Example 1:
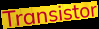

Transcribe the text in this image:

Transistor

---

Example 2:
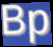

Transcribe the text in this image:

Bp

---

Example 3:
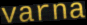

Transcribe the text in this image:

varna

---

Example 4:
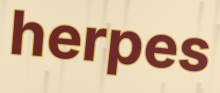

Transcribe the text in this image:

herpes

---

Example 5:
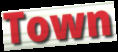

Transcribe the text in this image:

Town